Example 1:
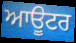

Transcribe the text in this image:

ਆਊਟਰ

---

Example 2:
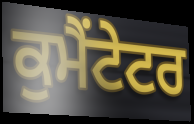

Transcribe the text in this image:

ਕੁਮੈਂਟੇਟਰ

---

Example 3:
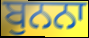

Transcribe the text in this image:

ਬੁਨਨਾ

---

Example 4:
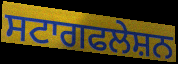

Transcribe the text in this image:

ਸਟਾਗਫਲੇਸ਼ਨ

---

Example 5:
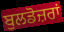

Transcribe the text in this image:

ਬੁਲਡੋਜ਼ਰਾਂ